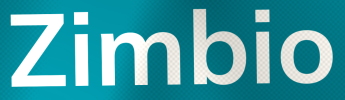
Zimbio